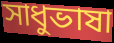
সাধুভাষা